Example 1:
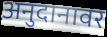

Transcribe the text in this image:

अनुदानावर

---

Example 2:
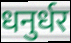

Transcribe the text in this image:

धनुर्धर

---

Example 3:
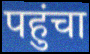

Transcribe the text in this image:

पहुंचा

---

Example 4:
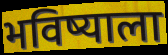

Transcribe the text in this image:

भविष्याला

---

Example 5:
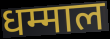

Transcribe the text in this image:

धम्माल